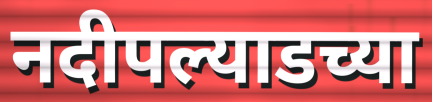
नदीपल्याडच्या